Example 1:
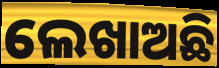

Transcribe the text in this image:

ଲେଖାଅଛି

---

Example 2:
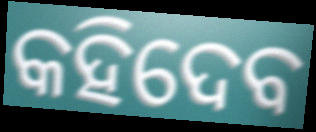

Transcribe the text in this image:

କହିଦେବ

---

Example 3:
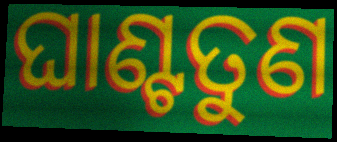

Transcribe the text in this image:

ଘାଣ୍ଟତୁଣ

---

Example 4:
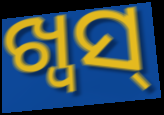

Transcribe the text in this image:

ଖ୍ୱସ୍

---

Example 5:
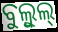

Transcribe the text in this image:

ବୁଲ୍ବୁଲ୍